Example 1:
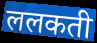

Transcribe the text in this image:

ललकती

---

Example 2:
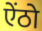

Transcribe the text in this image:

ऐंठो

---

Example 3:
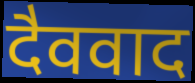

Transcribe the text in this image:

दैववाद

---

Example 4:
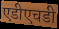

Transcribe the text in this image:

एडीएचडी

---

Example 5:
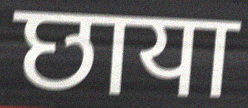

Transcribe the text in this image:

छाया